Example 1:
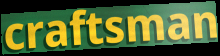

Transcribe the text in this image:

craftsman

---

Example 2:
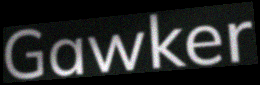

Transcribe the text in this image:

Gawker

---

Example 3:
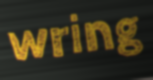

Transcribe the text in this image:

wring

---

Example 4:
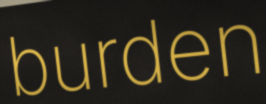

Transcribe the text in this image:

burden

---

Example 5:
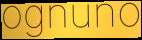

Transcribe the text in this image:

ognuno